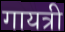
गायत्री